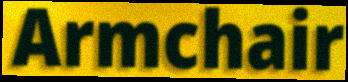
Armchair